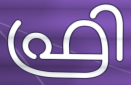
ഫ്രി